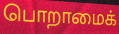
பொறாமைக்